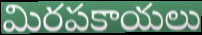
మిరపకాయలు